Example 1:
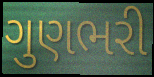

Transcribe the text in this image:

ગુણભરી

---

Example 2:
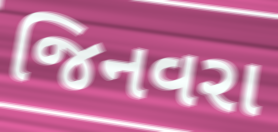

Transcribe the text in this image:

જિનવરા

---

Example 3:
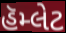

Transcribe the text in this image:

હૅમ્લેટ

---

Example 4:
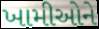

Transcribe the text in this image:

ખામીઓને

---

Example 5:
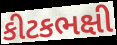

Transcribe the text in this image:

કીટકભક્ષી